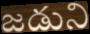
జడుని